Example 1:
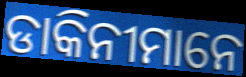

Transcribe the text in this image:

ଡାକିନୀମାନେ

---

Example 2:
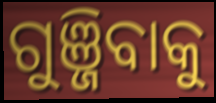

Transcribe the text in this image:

ଗୁଞ୍ଜିବାକୁ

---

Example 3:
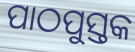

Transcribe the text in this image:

ପାଠପୁସ୍ତକ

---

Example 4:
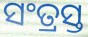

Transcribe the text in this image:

ସଂତ୍ରସ୍ତ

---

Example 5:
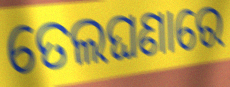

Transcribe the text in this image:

ତେଲଘଣାରେ